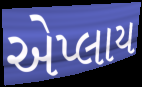
એપ્લાય